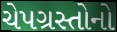
ચેપગ્રસ્તોનો